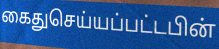
கைதுசெய்யப்பட்டபின்